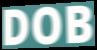
DOB